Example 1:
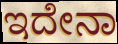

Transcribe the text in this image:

ಇದೇನಾ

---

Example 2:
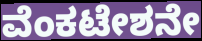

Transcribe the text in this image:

ವೆಂಕಟೇಶನೇ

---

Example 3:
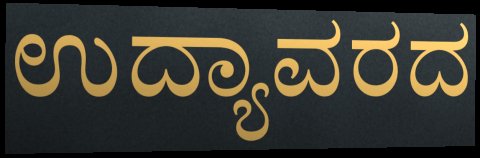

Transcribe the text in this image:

ಉದ್ಯಾವರದ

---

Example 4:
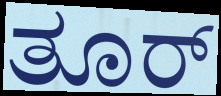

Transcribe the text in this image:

ತೂರ್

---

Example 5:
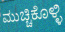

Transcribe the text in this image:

ಮುಚ್ಚಿಕೊಳ್ಳಿ